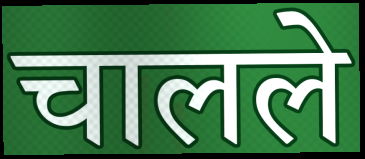
चालले